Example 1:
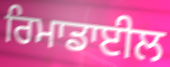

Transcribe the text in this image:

ਰਿਮਾਡਾਈਲ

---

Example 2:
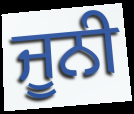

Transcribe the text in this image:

ਜੂਨੀ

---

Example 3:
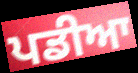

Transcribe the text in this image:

ਪਡੀਆ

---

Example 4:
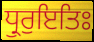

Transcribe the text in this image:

ਧ੍ਰੁਰੁਇਤਿਃ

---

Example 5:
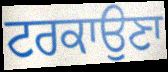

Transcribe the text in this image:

ਟਰਕਾਉਣਾ